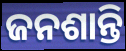
ଜନଶାନ୍ତି